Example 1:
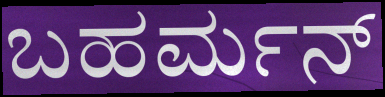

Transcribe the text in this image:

ಬಹರ್ಮನ್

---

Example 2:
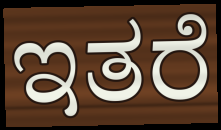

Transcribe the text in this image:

ಇತರೆ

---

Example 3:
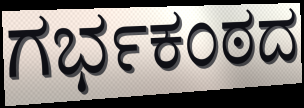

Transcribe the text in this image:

ಗರ್ಭಕಂಠದ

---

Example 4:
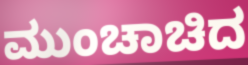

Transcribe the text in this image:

ಮುಂಚಾಚಿದ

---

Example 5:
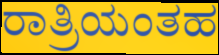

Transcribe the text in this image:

ರಾತ್ರಿಯಂತಹ